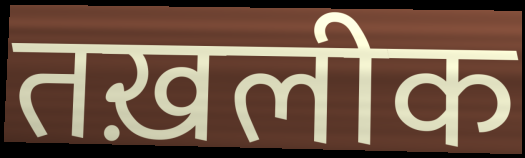
तख़लीक